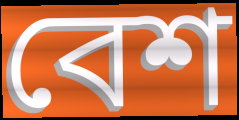
বেশ